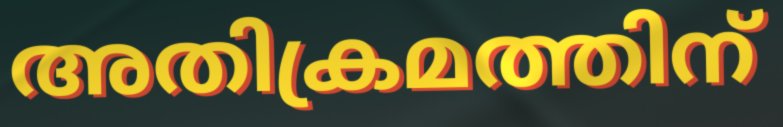
അതിക്രമത്തിന്